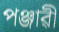
পঞ্জাৱী